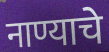
नाण्याचे